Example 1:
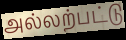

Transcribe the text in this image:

அல்லற்பட்டு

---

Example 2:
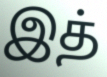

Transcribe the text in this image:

இத்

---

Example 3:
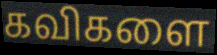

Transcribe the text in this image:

கவிகளை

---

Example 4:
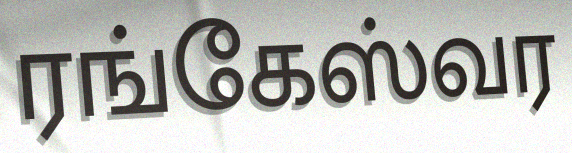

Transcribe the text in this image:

ரங்கேஸ்வர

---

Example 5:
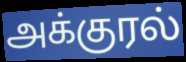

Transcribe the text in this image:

அக்குரல்